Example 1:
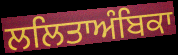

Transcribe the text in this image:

ਲਲਿਤਾਅੰਬਿਕਾ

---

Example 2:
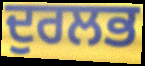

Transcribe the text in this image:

ਦੁਰਲਭ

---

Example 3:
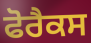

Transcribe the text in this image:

ਫੋਰੈਕਸ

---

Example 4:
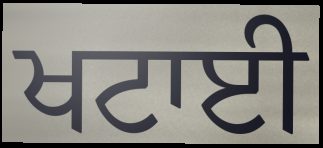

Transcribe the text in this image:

ਖਟਾਈ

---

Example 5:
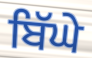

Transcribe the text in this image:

ਬਿੱਘੇ